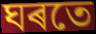
ঘৰতে